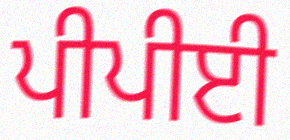
ਪੀਪੀਈ